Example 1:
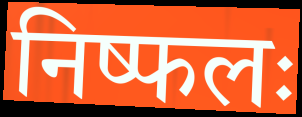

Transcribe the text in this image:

निष्फलः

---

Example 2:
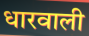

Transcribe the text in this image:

धारवाली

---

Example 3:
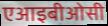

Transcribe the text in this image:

एआइबीओसी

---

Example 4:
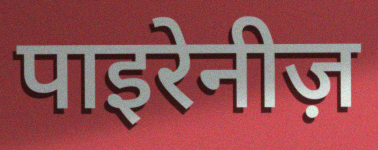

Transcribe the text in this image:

पाइरेनीज़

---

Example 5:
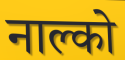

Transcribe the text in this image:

नाल्को